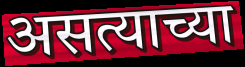
असत्याच्या